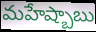
మహేష్బాబు